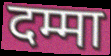
दम्मा